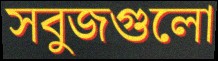
সবুজগুলো